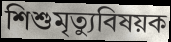
শিশুমৃত্যুবিষয়ক